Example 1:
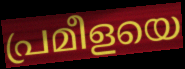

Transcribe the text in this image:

പ്രമീളയെ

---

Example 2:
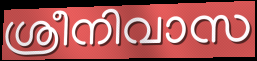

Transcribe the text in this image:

ശ്രീനിവാസ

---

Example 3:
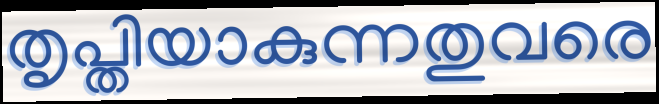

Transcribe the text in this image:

തൃപ്തിയാകുന്നതുവരെ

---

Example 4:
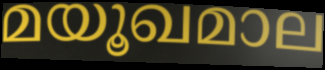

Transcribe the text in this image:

മയൂഖമാല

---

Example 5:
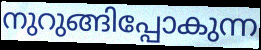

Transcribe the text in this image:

നുറുങ്ങിപ്പോകുന്ന